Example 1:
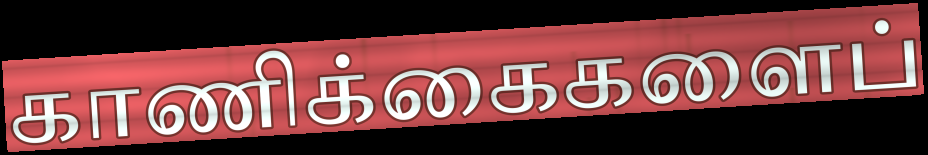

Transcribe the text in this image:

காணிக்கைகளைப்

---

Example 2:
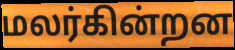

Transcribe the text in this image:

மலர்கின்றன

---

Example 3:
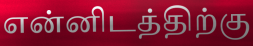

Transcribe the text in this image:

என்னிடத்திற்கு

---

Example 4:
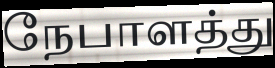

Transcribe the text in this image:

நேபாளத்து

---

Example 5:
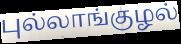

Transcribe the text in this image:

புல்லாங்குழல்